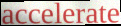
accelerate